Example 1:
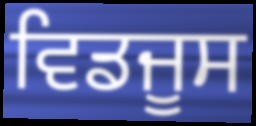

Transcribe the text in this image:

ਵਿਡਜੂਸ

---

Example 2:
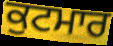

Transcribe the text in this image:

ਕੁਟਮਾਰ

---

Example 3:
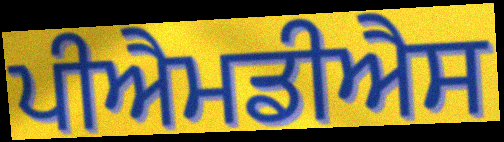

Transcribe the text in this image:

ਪੀਐਮਡੀਐਸ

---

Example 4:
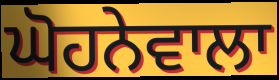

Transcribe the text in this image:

ਘੋਹਨੇਵਾਲਾ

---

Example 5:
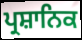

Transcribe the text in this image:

ਪ੍ਰਸ਼ਾਨਿਕ